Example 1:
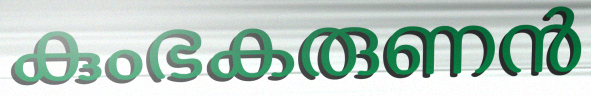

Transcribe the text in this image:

കുംഭകരുണൻ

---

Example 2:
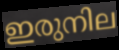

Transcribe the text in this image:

ഇരുനില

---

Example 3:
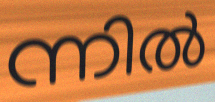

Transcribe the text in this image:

ന്നിൽ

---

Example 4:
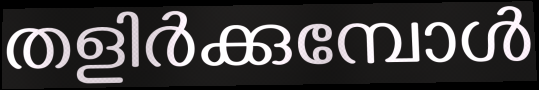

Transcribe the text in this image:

തളിർക്കുമ്പോൾ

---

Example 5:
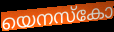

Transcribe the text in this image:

യെനസ്കോ